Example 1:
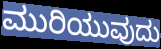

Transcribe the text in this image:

ಮುರಿಯುವುದು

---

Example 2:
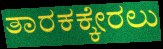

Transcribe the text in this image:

ತಾರಕಕ್ಕೇರಲು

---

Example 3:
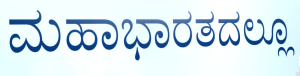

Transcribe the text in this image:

ಮಹಾಭಾರತದಲ್ಲೂ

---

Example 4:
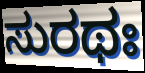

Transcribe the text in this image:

ಸುರಥಃ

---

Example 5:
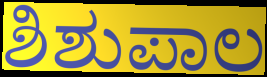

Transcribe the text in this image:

ಶಿಶುಪಾಲ